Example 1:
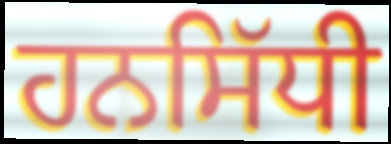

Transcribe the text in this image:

ਹਨਸਿੱਧੀ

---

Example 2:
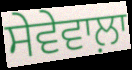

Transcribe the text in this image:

ਸੇਵੇਵਾਲ਼ਾ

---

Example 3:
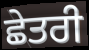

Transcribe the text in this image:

ਛੇਤਰੀ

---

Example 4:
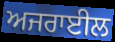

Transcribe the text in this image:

ਅਜਰਾਈਲ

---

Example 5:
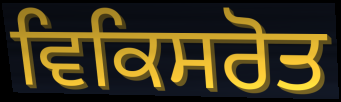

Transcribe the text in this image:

ਵਿਕਿਸਰੋਤ